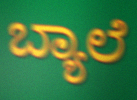
ಬ್ಯಾಲೆ